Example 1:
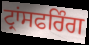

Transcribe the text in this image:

ਟ੍ਰਾਂਸਫਰਿੰਗ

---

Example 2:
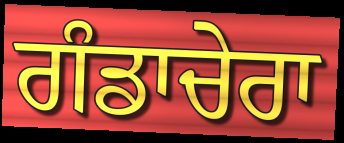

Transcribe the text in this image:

ਗੰਡਾਚੇਰਾ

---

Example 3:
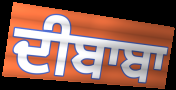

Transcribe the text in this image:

ਦੀਬਾਬਾ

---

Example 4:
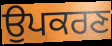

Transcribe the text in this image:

ਉਪਕਰਣ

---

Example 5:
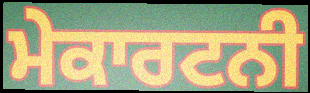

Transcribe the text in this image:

ਮੇਕਾਰਟਨੀ